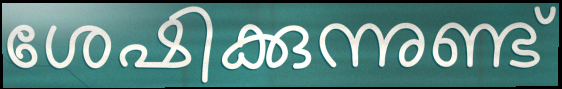
ശേഷിക്കുന്നുണ്ട്